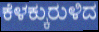
ಕೆಳಕ್ಕುರುಳಿದ